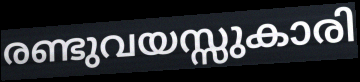
രണ്ടുവയസ്സുകാരി